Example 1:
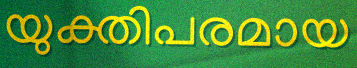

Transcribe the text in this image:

യുക്തിപരമായ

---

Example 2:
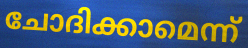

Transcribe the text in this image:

ചോദിക്കാമെന്ന്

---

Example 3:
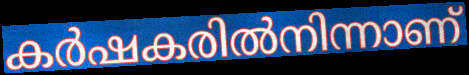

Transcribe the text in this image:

കർഷകരിൽനിന്നാണ്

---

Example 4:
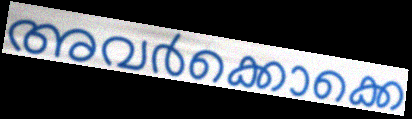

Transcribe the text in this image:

അവർക്കൊക്കെ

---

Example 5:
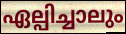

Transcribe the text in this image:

ഏല്പിച്ചാലും